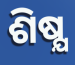
ଶିଷ୍ଯ